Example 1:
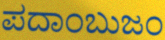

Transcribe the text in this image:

ಪದಾಂಬುಜಂ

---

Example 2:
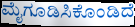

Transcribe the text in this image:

ಮೈಗೂಡಿಸಿಕೊಂಡಿದೆ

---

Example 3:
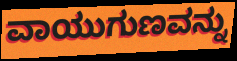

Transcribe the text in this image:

ವಾಯುಗುಣವನ್ನು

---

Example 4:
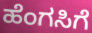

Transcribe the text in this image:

ಹೆಂಗಸಿಗೆ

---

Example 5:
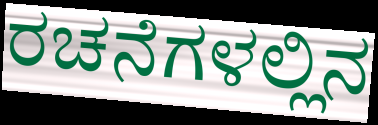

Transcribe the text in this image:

ರಚನೆಗಳಲ್ಲಿನ